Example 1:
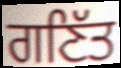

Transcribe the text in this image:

ਗਣਿੱਤ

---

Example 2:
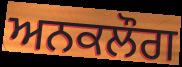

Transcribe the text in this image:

ਅਨਕਲੌਗ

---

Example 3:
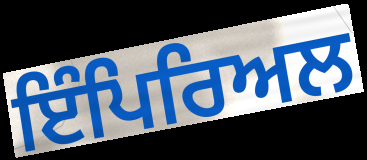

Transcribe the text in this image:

ਇੰਪਿਰਿਅਲ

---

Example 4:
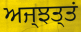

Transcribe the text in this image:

ਅਜ੍ਝਤ੍ਤਂ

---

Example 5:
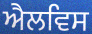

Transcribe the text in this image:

ਐਲਵਿਸ